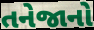
તનેજાનો